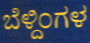
ಬೆಳ್ದಿಂಗಳ